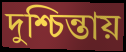
দুশ্চিন্তায়